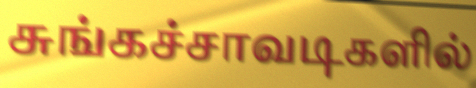
சுங்கச்சாவடிகளில்